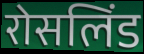
रोसलिंड